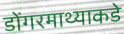
डोंगरमाथ्याकडे